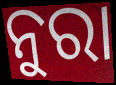
ନୁରା